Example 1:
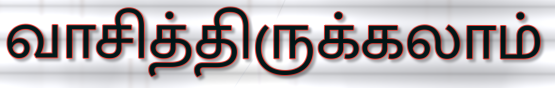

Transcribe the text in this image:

வாசித்திருக்கலாம்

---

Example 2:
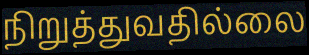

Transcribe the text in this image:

நிறுத்துவதில்லை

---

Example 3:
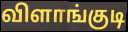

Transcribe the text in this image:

விளாங்குடி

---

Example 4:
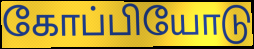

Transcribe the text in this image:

கோப்பியோடு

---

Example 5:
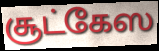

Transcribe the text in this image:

சூட்கேஸ